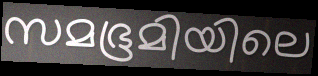
സമഭൂമിയിലെ